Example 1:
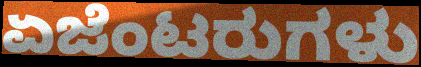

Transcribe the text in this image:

ಏಜೆಂಟರುಗಳು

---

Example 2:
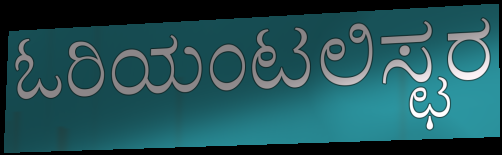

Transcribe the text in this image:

ಓರಿಯಂಟಲಿಸ್ಟರ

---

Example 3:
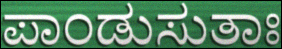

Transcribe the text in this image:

ಪಾಂಡುಸುತಾಃ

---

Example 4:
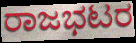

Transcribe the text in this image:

ರಾಜಭಟರ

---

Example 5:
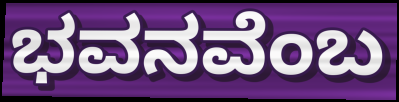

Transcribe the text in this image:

ಭವನವೆಂಬ